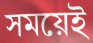
সময়েই